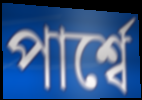
পার্শ্বে